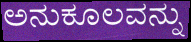
ಅನುಕೂಲವನ್ನು